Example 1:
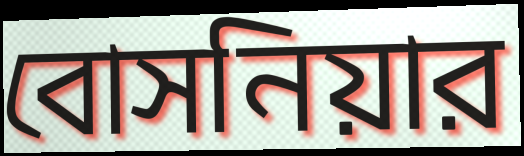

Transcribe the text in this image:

বোসনিয়ার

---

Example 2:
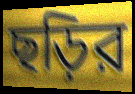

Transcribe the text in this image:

ছড়ির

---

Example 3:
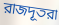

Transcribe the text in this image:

রাজদূতরা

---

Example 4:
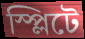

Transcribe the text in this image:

স্প্লিটে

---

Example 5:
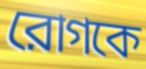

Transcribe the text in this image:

রোগকে